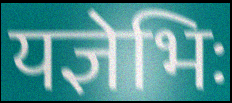
यज्ञेभिः